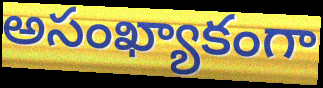
అసంఖ్యాకంగా